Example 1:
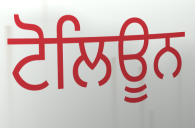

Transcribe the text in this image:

ਟੋਲਿਊਨ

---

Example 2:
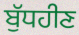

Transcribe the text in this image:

ਬੁੱਧਹੀਣ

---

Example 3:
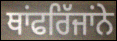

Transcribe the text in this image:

ਥਾਂਫਰਿੱਜਾਂਨੇ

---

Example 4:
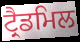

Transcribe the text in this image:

ਟ੍ਰੈਡਮਿਲ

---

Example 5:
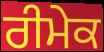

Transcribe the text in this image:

ਰੀਮੇਕ